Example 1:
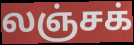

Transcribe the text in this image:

லஞ்சக்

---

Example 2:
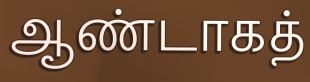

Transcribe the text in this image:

ஆண்டாகத்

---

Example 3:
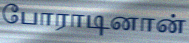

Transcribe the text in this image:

போராடினான்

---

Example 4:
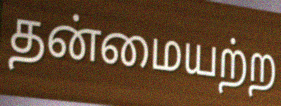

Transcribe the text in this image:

தன்மையற்ற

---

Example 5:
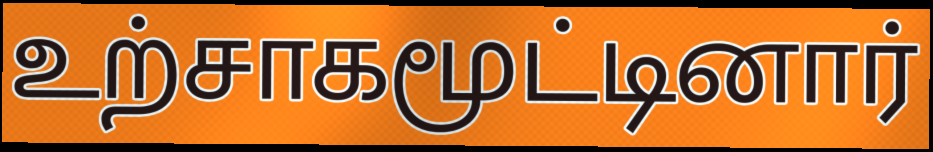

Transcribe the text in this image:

உற்சாகமூட்டினார்